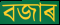
বজাৰ